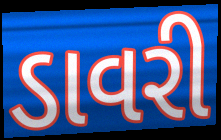
ડાવરી